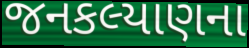
જનકલ્યાણના